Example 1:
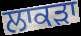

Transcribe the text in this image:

ਲਾਕੜਾ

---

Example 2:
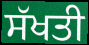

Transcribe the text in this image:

ਸੱਖਤੀ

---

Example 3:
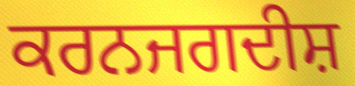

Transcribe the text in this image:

ਕਰਨਜਗਦੀਸ਼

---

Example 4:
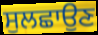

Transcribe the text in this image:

ਸੁਲਛਾਉਣ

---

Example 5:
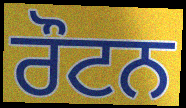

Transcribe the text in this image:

ਰੌਟਨ